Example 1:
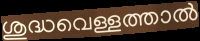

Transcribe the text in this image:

ശുദ്ധവെള്ളത്താൽ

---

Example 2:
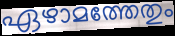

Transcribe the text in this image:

ഏഴാമത്തേതും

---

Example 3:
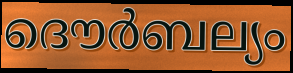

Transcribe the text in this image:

ദൌർബല്യം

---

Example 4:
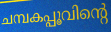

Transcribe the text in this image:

ചമ്പകപ്പൂവിന്റെ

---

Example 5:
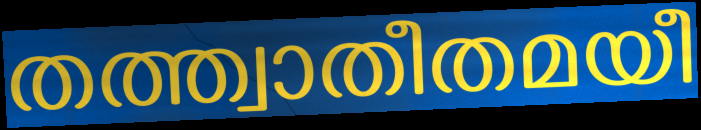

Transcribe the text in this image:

തത്ത്വാതീതമയീ